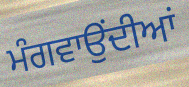
ਮੰਗਵਾਉਂਦੀਆਂ